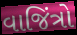
વાજિંત્રો